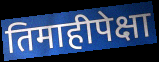
तिमाहीपेक्षा